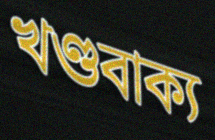
খণ্ডবাক্য